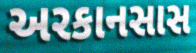
અરકાનસાસ